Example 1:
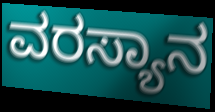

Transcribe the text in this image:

ವರಸ್ಯಾನ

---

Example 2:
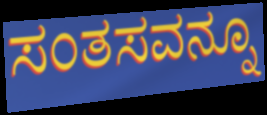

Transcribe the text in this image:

ಸಂತಸವನ್ನೂ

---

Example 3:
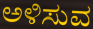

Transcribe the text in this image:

ಅಳಿಸುವ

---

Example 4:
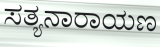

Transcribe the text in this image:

ಸತ್ಯನಾರಾಯಣ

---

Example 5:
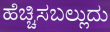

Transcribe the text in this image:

ಹೆಚ್ಚಿಸಬಲ್ಲುದು